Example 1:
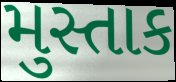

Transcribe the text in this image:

મુસ્તાક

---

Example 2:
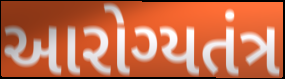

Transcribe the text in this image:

આરોગ્યતંત્ર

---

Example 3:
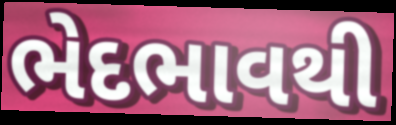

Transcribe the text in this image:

ભેદભાવથી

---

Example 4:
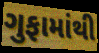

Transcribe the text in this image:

ગુફામાંથી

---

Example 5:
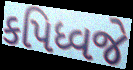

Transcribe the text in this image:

કપિધ્વજે